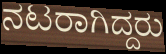
ನಟರಾಗಿದ್ದರು